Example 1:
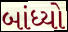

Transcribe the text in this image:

બાંધ્યો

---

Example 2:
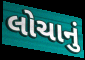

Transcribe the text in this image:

લોચાનું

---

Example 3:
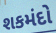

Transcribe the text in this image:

શકમંદો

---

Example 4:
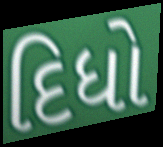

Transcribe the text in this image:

દિધો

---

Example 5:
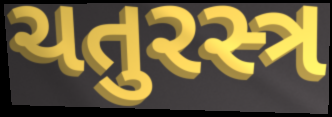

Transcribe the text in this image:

ચતુરસ્ત્ર